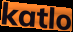
katlo